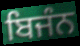
ਬਿਜੰਨ